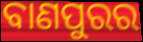
ବାଣପୁରର